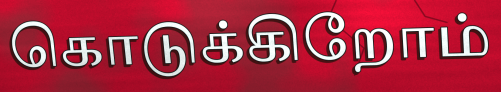
கொடுக்கிறோம்